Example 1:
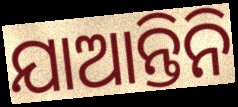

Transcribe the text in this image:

ଯାଆନ୍ତିନି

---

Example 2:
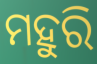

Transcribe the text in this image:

ମହୁରି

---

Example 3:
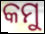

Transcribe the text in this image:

କମୁ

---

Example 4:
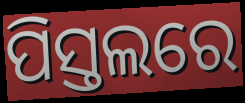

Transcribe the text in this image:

ପିସ୍ତଲରେ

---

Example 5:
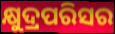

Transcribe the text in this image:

କ୍ଷୁଦ୍ରପରିସର